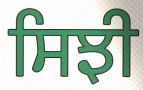
ਸਿਝੀ